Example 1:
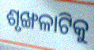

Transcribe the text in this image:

ଶୃଙ୍ଖଳାଟିକୁ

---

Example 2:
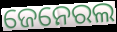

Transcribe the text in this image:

ଜେନେରଲ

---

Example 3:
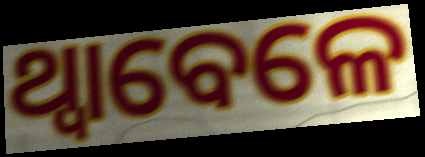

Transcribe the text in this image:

ଥ୍ବାବେଳେ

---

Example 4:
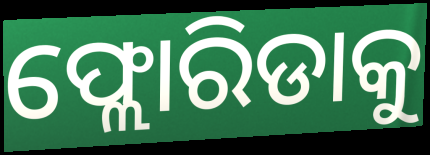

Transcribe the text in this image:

ଫ୍ଲୋରିଡାକୁ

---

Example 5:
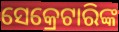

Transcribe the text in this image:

ସେକ୍ରେଟାରିଙ୍କ